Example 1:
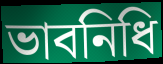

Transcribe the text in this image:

ভাবনিধি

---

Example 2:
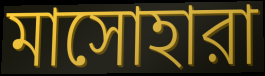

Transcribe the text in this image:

মাসোহারা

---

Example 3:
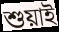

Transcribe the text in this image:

শুয়াই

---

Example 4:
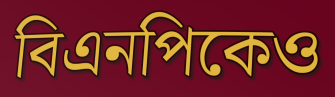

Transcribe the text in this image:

বিএনপিকেও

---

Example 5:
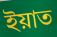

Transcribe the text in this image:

ইয়াত